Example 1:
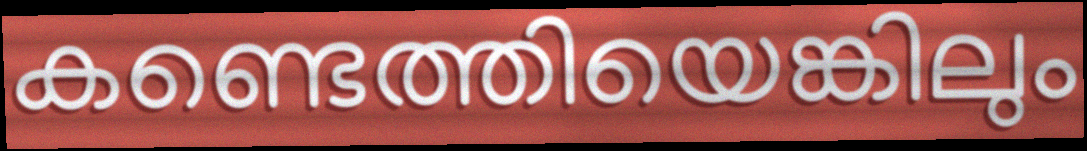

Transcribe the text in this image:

കണ്ടെത്തിയെങ്കിലും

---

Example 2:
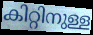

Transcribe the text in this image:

കിറ്റിനുള്ള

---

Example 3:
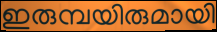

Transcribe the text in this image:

ഇരുമ്പയിരുമായി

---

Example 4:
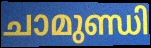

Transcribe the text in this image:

ചാമുണ്ഡി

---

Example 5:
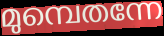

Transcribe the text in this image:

മുമ്പെതന്നേ